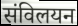
संविलयन